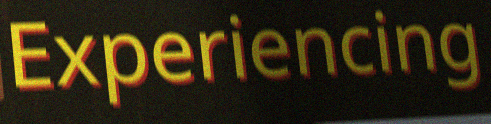
Experiencing